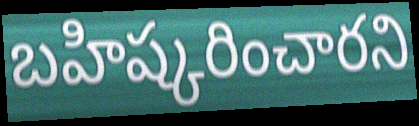
బహిష్కరించారని